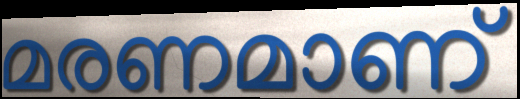
മരണമാണ്